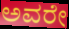
ಅವರೇ